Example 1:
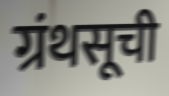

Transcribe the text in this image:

ग्रंथसूची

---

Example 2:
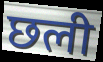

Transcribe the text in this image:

छली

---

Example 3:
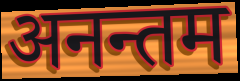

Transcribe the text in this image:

अनन्तम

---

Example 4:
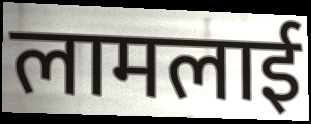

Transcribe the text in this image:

लामलाई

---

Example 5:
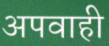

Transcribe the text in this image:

अपवाही